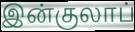
இன்குலாப்